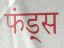
फंड्‌स